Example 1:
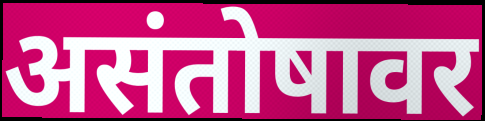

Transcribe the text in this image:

असंतोषावर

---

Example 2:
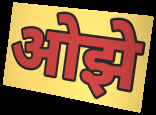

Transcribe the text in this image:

ओझे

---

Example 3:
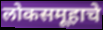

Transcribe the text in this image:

लोकसमूहाचे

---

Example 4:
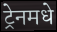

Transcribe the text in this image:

ट्रेनमधे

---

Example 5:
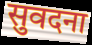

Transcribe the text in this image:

सुवदना